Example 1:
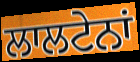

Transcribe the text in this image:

ਲਾਲਟੇਨਾਂ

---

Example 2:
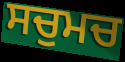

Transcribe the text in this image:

ਸਚੁਮਚ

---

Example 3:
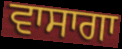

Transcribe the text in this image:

ਵਾਸਾਗਾ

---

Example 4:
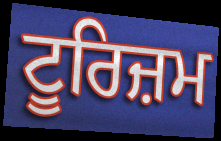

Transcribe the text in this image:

ਟੂਰਿਜ਼ਮ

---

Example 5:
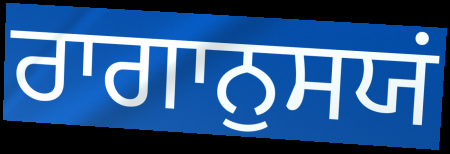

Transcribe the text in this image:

ਰਾਗਾਨੁਸਯਂ